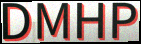
DMHP